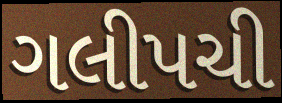
ગલીપચી